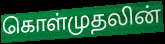
கொள்முதலின்